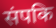
संपकि